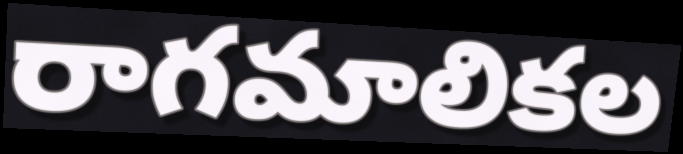
రాగమాలికల